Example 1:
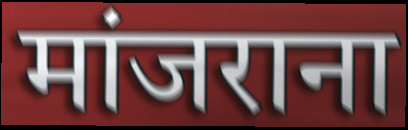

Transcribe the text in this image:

मांजराना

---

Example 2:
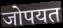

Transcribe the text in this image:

जोपयत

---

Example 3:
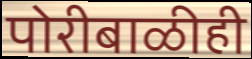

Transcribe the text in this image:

पोरीबाळीही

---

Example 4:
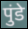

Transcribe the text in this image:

पुंडे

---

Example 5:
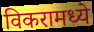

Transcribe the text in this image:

विकरामध्ये